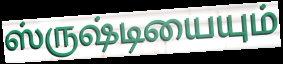
ஸ்ருஷ்டியையும்